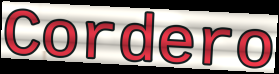
Cordero